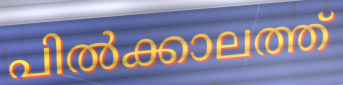
പിൽക്കാലത്ത്